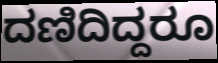
ದಣಿದಿದ್ದರೂ